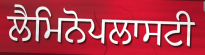
ਲੈਮਿਨੋਪਲਾਸਟੀ